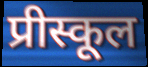
प्रीस्कूल